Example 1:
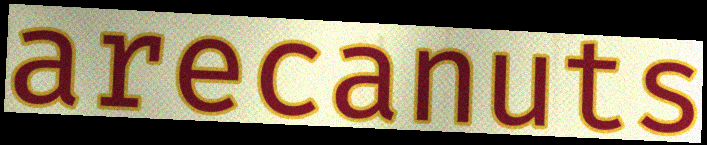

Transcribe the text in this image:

arecanuts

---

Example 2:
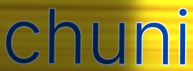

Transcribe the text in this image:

chuni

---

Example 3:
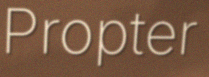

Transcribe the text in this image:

Propter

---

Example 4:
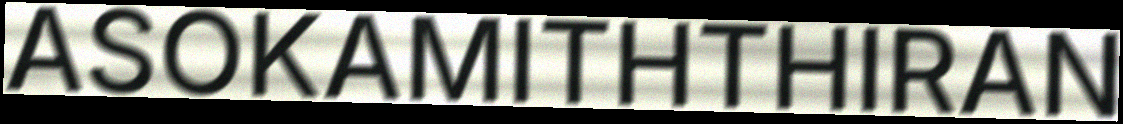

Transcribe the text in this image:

ASOKAMITHTHIRAN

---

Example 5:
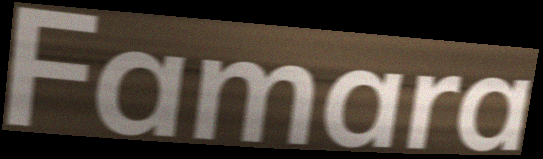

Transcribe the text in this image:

Famara